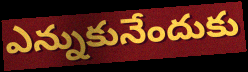
ఎన్నుకునేందుకు